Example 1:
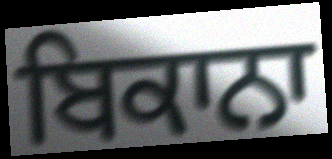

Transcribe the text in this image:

ਬਿਕਾਨਾ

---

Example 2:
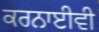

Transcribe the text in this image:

ਕਰਨਾਈਵੀ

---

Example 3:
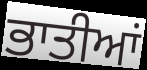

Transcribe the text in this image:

ਭਾਤੀਆਂ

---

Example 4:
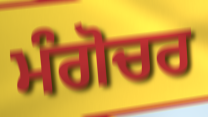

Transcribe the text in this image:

ਮੰਗੋਚਰ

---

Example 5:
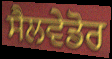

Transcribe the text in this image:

ਸੈਲਵੇਡੋਰ